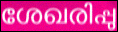
ശേഖരിപ്പു